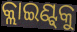
କ୍ଲାଇଣ୍ଟ୍‌କୁ